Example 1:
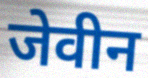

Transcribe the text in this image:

जेवीन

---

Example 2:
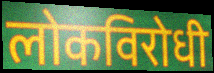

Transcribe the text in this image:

लोकविरोधी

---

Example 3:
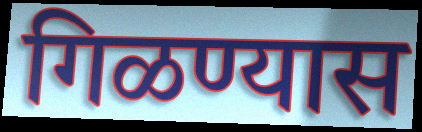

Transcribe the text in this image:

गिळण्यास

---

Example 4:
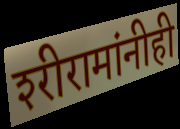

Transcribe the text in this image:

श्रीरामांनीही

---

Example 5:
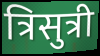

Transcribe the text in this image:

त्रिसुत्री